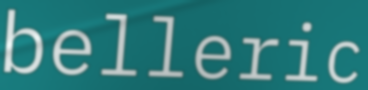
belleric